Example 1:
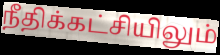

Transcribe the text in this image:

நீதிக்கட்சியிலும்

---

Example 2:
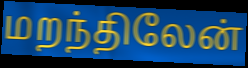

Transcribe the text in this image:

மறந்திலேன்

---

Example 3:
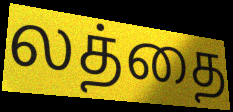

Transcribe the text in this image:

லத்தை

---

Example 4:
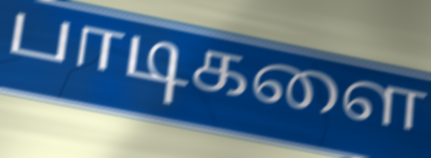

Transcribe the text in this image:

பாடிகளை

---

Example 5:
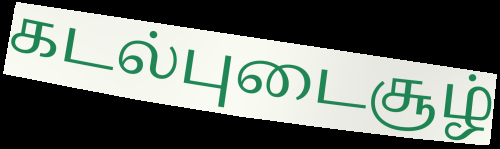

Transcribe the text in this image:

கடல்புடைசூழ்